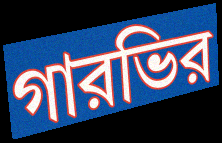
গারভির